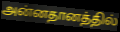
அன்னதானத்தில்